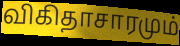
விகிதாசாரமும்